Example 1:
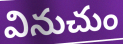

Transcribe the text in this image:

వినుచుం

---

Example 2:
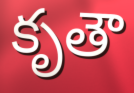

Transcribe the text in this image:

కృతౌ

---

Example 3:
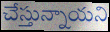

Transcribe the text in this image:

చేస్తున్నాయని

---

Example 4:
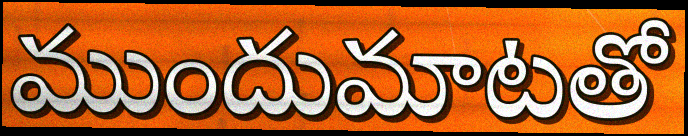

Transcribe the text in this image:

ముందుమాటతో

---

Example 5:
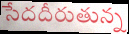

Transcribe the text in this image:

సేదదీరుతున్న